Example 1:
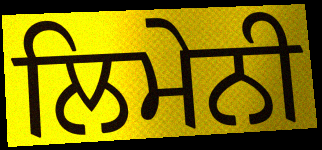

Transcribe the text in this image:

ਲਿਮੇਨੀ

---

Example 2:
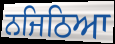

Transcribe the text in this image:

ਨਜਿਠਿਆ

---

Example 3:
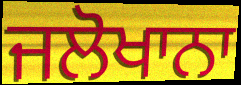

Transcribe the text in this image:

ਜਲੋਖਾਨਾ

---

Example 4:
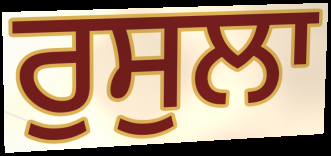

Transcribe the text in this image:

ਰੁਸੁਲਾ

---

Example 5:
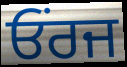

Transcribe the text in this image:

ਓਂਰਜ